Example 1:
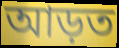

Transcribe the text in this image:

আড়ত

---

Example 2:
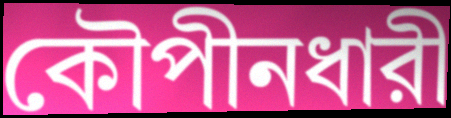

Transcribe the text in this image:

কৌপীনধারী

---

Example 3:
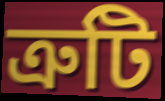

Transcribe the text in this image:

ত্রুটি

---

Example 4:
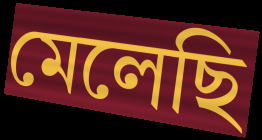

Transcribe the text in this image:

মেলেছি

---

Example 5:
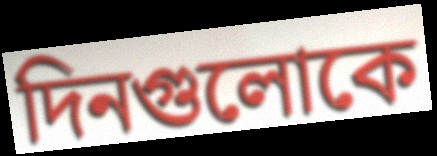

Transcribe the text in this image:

দিনগুলোকে